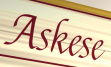
Askese